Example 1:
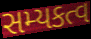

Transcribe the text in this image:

સમ્યકત્વ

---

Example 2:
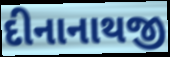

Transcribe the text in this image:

દીનાનાથજી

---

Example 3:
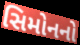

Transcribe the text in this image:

સિમોનનો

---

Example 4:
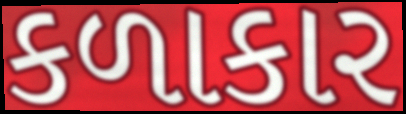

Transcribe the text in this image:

કળાકાર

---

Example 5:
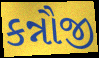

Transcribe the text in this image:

કન્નૌજી